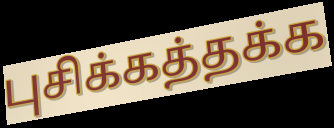
புசிக்கத்தக்க